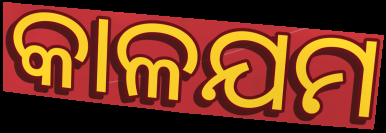
କାଳଯମ